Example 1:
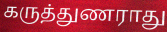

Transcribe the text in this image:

கருத்துணராது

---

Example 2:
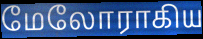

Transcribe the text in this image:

மேலோராகிய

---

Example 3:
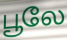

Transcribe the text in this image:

பூலே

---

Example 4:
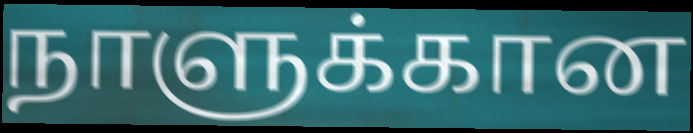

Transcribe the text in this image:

நாளுக்கான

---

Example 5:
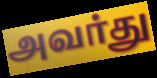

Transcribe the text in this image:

அவர்து